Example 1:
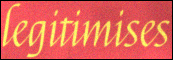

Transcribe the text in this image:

legitimises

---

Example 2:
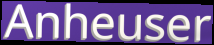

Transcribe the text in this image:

Anheuser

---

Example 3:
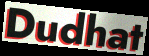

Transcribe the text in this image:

Dudhat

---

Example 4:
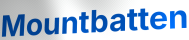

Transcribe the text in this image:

Mountbatten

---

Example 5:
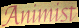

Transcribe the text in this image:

Animist